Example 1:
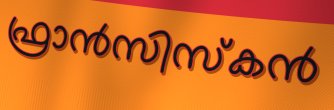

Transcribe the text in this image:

ഫ്രാൻസിസ്കൻ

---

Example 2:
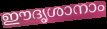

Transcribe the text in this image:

ഈദൃശാനാം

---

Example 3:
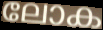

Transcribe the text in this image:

ലോക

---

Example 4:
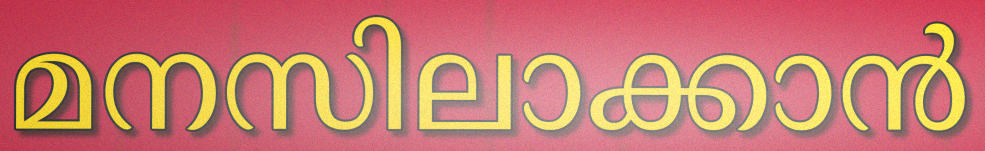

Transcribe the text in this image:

മനസിലാക്കാൻ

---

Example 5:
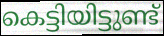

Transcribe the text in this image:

കെട്ടിയിട്ടുണ്ട്